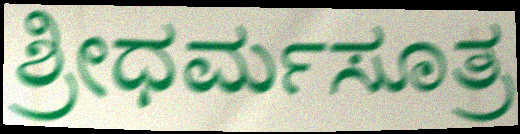
ಶ್ರೀಧರ್ಮಸೂತ್ರ